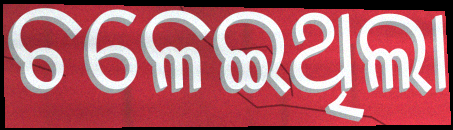
ଚଳେଇଥିଲା